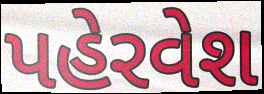
પહેરવેશ